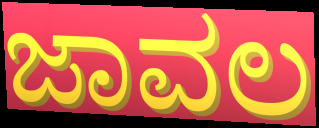
ಜಾವಲ